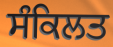
ਸੰਕਿਲਤ